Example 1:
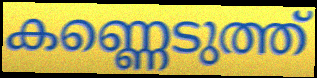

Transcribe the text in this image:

കണ്ണെടുത്ത്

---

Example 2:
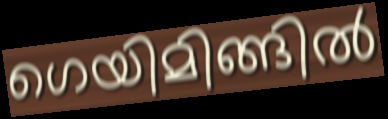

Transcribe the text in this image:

ഗെയിമിങ്ങിൽ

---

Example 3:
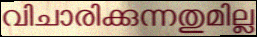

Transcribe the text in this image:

വിചാരിക്കുന്നതുമില്ല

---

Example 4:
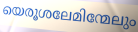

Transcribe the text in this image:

യെരൂശലേമിന്മേലും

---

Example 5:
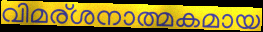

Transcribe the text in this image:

വിമര്ശനാത്മകമായ